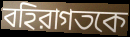
বহিরাগতকে